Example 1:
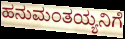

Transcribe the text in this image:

ಹನುಮಂತಯ್ಯನಿಗೆ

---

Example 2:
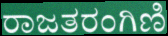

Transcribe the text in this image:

ರಾಜತರಂಗಿಣಿ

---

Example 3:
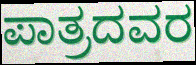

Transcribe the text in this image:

ಪಾತ್ರದವರ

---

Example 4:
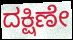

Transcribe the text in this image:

ದಕ್ಷಿಣೇ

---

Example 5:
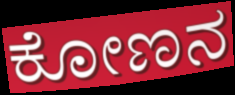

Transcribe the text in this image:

ಕೋಣನ